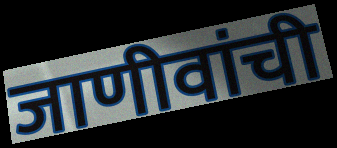
जाणीवांची